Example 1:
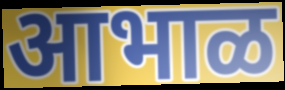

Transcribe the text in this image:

आभाळ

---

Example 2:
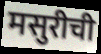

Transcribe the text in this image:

मसुरीची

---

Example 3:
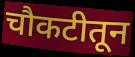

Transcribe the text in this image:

चौकटीतून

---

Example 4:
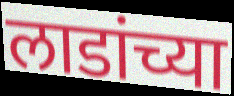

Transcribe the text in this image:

लाडांच्या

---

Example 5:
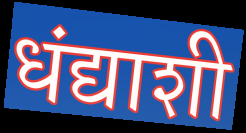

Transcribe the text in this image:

धंद्याशी